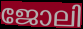
ജോലി